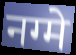
नग्मे